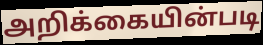
அறிக்கையின்படி